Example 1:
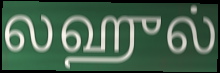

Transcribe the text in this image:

லஹுல்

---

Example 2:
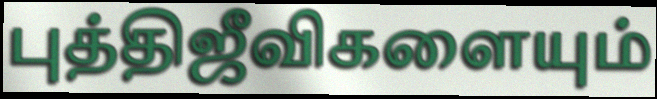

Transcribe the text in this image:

புத்திஜீவிகளையும்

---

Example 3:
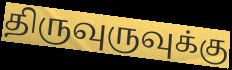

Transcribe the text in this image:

திருவுருவுக்கு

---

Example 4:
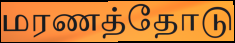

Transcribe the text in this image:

மரணத்தோடு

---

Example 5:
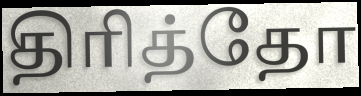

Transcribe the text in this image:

திரித்தோ